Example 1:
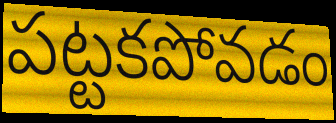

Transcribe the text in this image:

పట్టకపోవడం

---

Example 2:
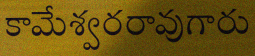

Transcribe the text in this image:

కామేశ్వరరావుగారు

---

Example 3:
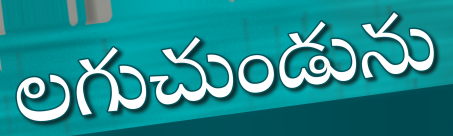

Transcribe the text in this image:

లగుచుండును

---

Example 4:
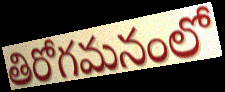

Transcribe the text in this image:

తిరోగమనంలో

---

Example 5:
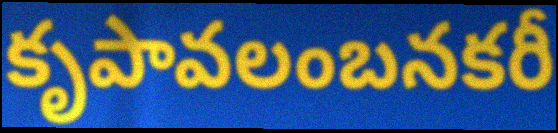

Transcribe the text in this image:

కృపావలంబనకరీ